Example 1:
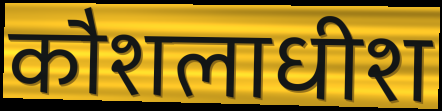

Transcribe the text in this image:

कौशलाधीश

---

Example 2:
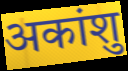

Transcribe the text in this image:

अकांशु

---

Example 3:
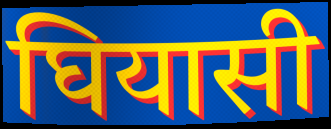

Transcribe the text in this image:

घियासी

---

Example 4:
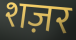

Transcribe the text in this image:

शज़र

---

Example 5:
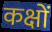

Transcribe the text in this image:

कक्षों